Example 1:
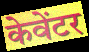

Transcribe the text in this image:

केवेंटर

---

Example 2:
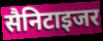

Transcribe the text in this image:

सैनिटाइजर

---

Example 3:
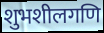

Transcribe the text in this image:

शुभशीलगणि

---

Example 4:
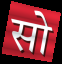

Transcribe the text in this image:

सो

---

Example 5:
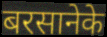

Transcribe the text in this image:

बरसानेके